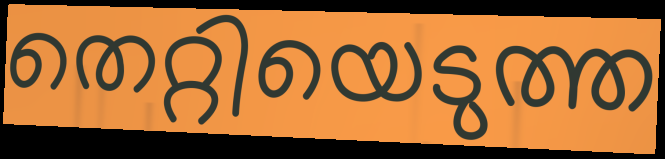
തെറ്റിയെടുത്ത